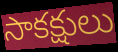
సాకక్షులు